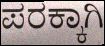
ಪರಕ್ಕಾಗಿ